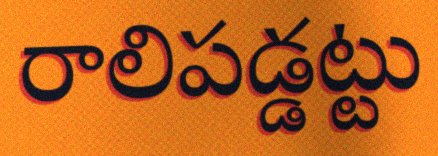
రాలిపడ్డట్టు